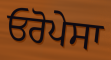
ਓਰੋਪੇਸਾ